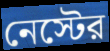
নেস্টের